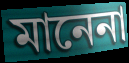
মানেনা